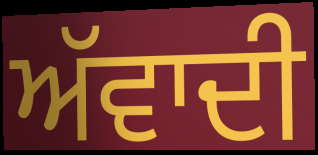
ਅੱਵਾਦੀ